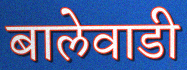
बालेवाडी